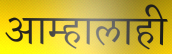
आम्हालाही